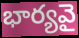
భార్యవై